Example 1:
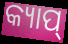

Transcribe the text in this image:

କ୍ୟାପ୍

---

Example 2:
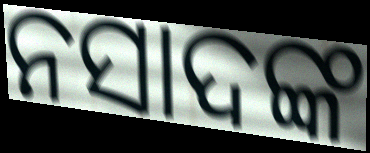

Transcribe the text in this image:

ନସାଦଙ୍କ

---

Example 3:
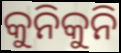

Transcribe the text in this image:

କୁନିକୁନି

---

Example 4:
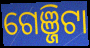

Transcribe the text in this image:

ଗେଞ୍ଜିଟା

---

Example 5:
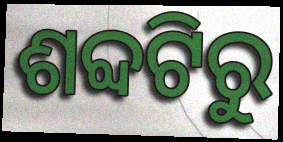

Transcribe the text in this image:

ଶବ୍ଦଟିରୁ